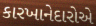
કારખાનેદારોએ